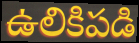
ఉలికిపడి